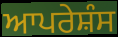
ਆਪਰੇਸ਼ੰਸ